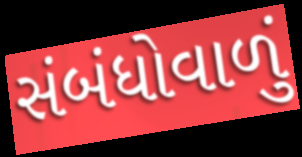
સંબંધોવાળું